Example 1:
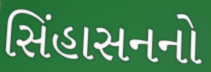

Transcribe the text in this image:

સિંહાસનનો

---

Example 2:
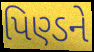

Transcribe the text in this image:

પિણ્ડને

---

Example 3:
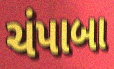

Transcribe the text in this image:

ચંપાબા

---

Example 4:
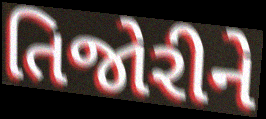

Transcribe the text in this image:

તિજોરીને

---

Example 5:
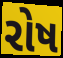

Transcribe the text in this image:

રોષ